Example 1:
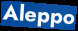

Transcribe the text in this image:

Aleppo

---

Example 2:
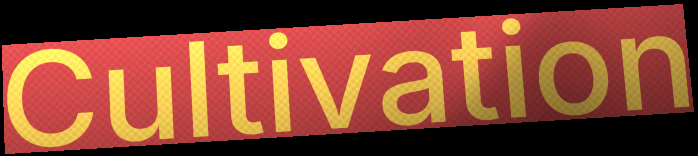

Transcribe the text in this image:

Cultivation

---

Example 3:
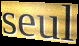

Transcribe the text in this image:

seul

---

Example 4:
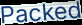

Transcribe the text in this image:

Packed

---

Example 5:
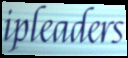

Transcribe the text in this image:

ipleaders